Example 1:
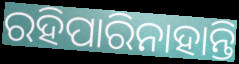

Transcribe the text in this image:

ରହିପାରିନାହାନ୍ତି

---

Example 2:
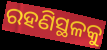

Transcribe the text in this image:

ରହଣିସ୍ଥଳକୁ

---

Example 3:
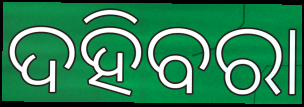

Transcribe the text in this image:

ଦହିବରା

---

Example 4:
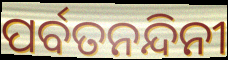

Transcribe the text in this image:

ପର୍ବତନନ୍ଦିନୀ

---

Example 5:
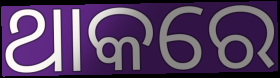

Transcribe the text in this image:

ଥାକରେ